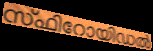
സ്ഫിറോയിഡൽ